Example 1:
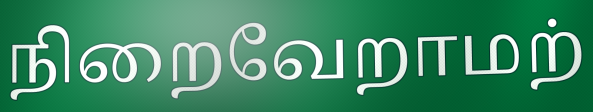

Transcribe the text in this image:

நிறைவேறாமற்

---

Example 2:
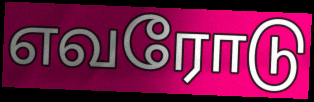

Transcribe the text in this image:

எவரோடு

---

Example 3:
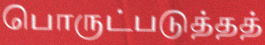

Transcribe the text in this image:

பொருட்படுத்தத்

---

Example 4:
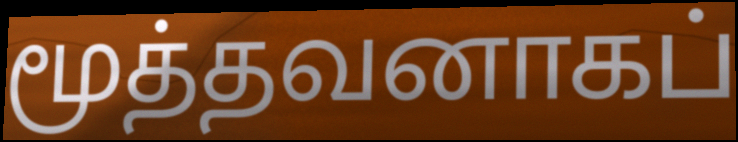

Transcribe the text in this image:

மூத்தவனாகப்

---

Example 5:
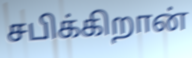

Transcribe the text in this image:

சபிக்கிறான்